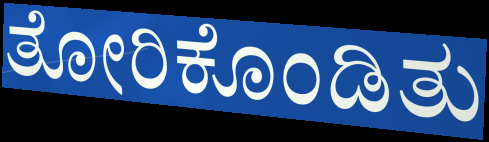
ತೋರಿಕೊಂಡಿತು